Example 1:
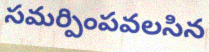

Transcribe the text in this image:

సమర్పింపవలసిన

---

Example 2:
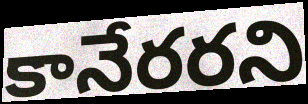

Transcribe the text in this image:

కానేరరని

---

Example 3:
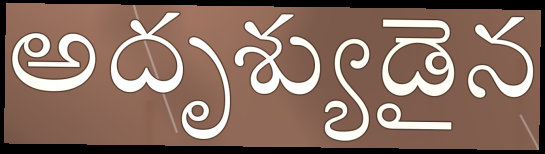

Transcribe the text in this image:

అదృశ్యుడైన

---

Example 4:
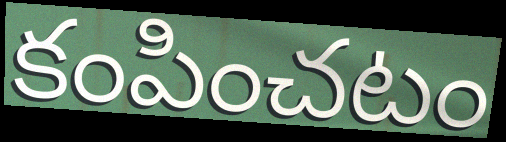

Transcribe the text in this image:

కంపించటం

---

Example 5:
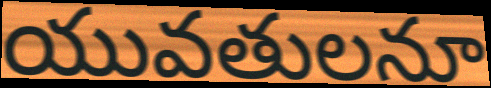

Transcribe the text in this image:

యువతులనూ